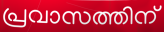
പ്രവാസത്തിന്